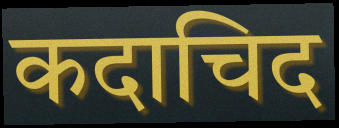
कदाचिद